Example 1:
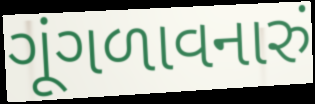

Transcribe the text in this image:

ગૂંગળાવનારું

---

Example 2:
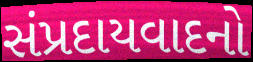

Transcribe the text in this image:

સંપ્રદાયવાદનો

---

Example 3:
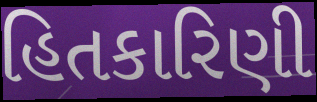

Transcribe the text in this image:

હિતકારિણી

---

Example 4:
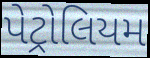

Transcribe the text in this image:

પેટ્રોલિયમ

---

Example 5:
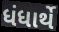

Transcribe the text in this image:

ધંધાર્થે